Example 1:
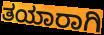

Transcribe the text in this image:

ತಯಾರಾಗಿ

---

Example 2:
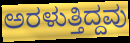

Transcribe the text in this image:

ಅರಳುತ್ತಿದ್ದವು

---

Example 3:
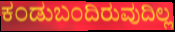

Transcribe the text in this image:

ಕಂಡುಬಂದಿರುವುದಿಲ್ಲ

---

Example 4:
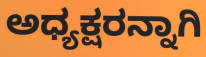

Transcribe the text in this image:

ಅಧ್ಯಕ್ಷರನ್ನಾಗಿ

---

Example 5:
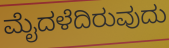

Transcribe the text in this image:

ಮೈದಳೆದಿರುವುದು